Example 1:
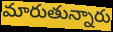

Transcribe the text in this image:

మారుతున్నారు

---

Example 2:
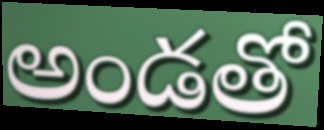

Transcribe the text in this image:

అండతో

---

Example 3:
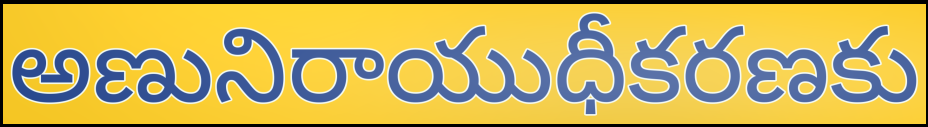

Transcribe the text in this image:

అణునిరాయుధీకరణకు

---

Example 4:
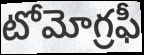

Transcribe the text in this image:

టోమోగ్రఫీ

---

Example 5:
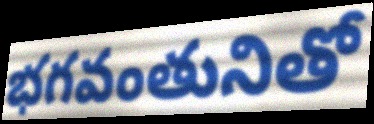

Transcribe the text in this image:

భగవంతునితో